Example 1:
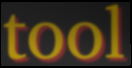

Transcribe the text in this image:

tool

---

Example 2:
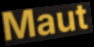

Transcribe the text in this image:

Maut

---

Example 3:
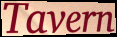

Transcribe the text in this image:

Tavern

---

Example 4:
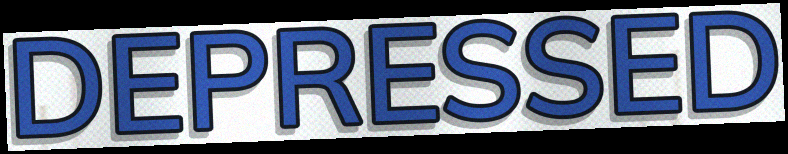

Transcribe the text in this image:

DEPRESSED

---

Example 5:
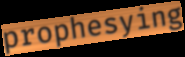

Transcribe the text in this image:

prophesying